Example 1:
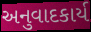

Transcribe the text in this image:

અનુવાદકાર્ય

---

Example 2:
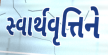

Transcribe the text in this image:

સ્વાર્થવૃત્તિને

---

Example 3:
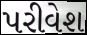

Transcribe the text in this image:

પરીવેશ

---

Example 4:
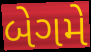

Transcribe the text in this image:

બેગમે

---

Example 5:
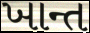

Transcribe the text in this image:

ખાન્ત